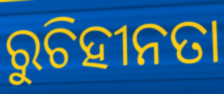
ରୁଚିହୀନତା